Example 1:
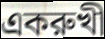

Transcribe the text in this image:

একরুখী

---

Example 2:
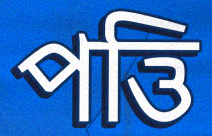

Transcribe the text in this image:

পত্তি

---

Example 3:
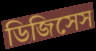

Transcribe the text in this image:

ডিজিসেস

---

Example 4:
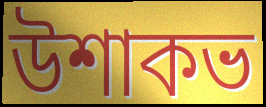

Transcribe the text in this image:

উশাকভ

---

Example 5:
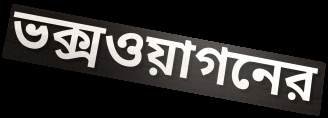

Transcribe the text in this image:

ভক্সওয়াগনের